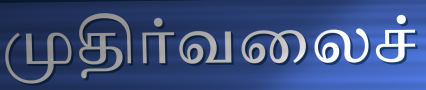
முதிர்வலைச்